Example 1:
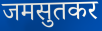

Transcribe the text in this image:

जमसुतकर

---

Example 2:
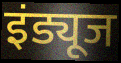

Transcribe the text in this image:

इंड्यूज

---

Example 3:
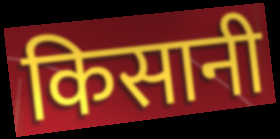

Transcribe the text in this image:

किसानी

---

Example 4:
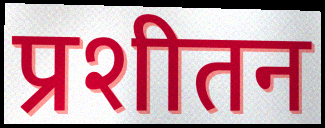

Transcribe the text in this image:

प्रशीतन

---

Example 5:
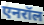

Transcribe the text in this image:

एनरॉल